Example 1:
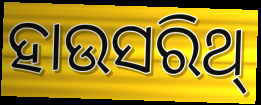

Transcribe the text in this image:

ହାଉସରିଥ୍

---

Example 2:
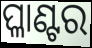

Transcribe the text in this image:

ପ୍ଳାଣ୍ଟର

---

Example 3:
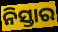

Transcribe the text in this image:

ନିସ୍ତାର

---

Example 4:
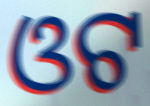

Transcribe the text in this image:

ଓଟ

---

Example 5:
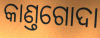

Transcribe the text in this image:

କାଣ୍ତଗୋଦା